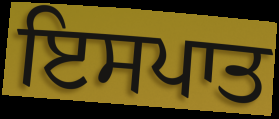
ਇਸਪਾਤ